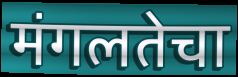
मंगलतेचा